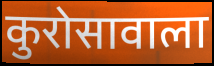
कुरोसावाला